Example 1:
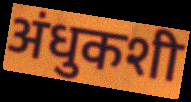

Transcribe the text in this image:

अंधुकशी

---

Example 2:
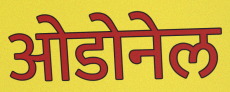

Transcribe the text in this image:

ओडोनेल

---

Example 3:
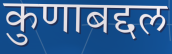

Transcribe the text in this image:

कुणाबद्दल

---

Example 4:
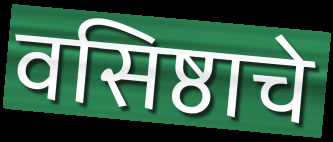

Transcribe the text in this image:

वसिष्ठाचे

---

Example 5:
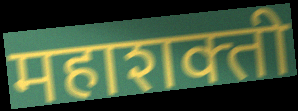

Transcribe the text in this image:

महाशक्‍ती